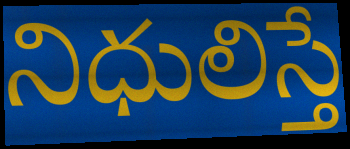
నిధులిస్తే